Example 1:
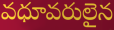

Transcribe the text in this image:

వధూవరులైన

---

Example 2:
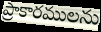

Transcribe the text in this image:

ప్రాకారములను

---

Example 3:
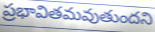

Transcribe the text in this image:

ప్రభావితమవుతుందని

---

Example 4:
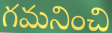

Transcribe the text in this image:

గమనించి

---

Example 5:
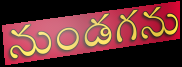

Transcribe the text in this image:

నుండగను